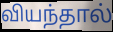
வியந்தால்